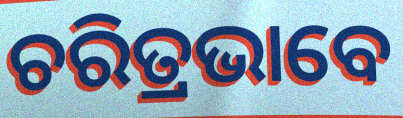
ଚରିତ୍ରଭାବେ